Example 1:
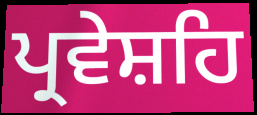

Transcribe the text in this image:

ਪ੍ਰਵੇਸ਼ਹਿ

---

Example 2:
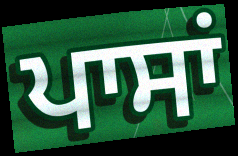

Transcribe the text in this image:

ਪਾਸਾਂ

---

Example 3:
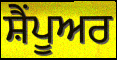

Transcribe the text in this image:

ਸ਼ੈਂਪੂਅਰ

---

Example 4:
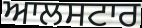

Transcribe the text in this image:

ਆਲਸਟਾਰ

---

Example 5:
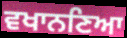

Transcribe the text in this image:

ਵਖਾਨਣਿਆ